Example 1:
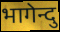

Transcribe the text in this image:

भागेन्दु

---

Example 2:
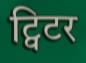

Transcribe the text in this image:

ट्विटर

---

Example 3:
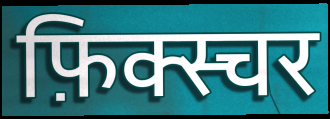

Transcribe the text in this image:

फ़िक्स्चर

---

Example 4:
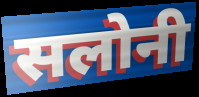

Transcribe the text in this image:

सलोनी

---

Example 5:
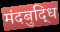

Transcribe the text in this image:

मंदबुद्धि